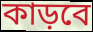
কাড়বে